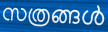
സത്രങ്ങൾ